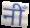
नीँ